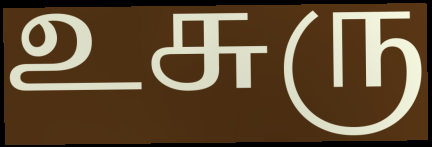
உசுரு